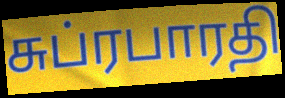
சுப்ரபாரதி